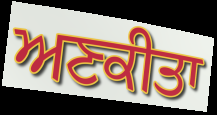
ਅਣਕੀਤਾ